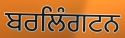
ਬਰਲਿੰਗਟਨ